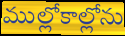
ముల్లోకాల్లోను